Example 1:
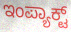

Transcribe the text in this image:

ಇಂಪ್ಯಾಕ್ಟ್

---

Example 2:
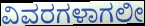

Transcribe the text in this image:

ವಿವರಗಳಾಗಲೀ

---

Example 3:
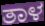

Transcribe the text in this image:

ತಾಳ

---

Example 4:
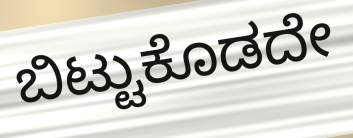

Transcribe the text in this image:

ಬಿಟ್ಟುಕೊಡದೇ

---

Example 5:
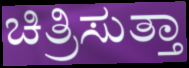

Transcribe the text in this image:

ಚಿತ್ರಿಸುತ್ತಾ